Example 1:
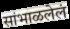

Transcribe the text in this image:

सांभाळलेलं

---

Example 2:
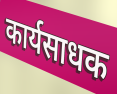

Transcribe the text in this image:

कार्यसाधक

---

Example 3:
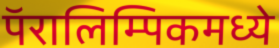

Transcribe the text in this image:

पॅरालिम्पिकमध्ये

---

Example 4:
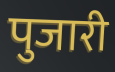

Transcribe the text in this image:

पुजारी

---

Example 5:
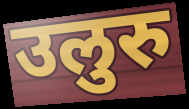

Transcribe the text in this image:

उलुरु